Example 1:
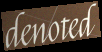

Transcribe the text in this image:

denoted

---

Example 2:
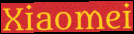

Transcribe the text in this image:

Xiaomei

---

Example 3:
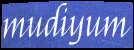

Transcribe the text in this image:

mudiyum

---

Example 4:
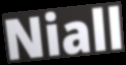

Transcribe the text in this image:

Niall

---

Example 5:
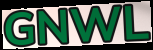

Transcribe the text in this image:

GNWL